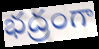
భద్రంగా